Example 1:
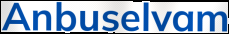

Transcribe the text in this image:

Anbuselvam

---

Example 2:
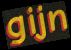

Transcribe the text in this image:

gijn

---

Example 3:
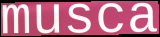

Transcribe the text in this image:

musca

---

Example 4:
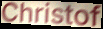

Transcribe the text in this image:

Christof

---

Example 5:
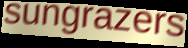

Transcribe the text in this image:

sungrazers